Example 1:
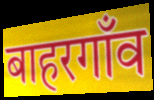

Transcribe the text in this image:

बाहरगाँव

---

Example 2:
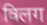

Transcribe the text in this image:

विलग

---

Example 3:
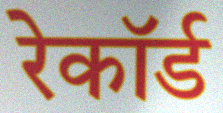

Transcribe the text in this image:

रेकॉर्ड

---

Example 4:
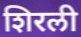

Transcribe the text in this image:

शिरली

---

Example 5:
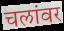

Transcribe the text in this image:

चलांवर